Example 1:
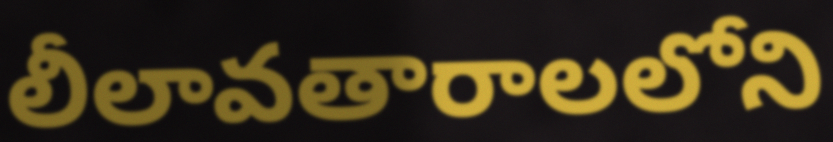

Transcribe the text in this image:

లీలావతారాలలోని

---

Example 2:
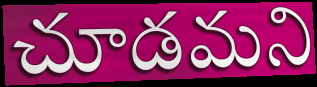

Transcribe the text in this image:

చూడమని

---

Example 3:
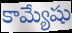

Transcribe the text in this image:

కామ్యేషు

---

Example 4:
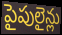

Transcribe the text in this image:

పైపులైన్లు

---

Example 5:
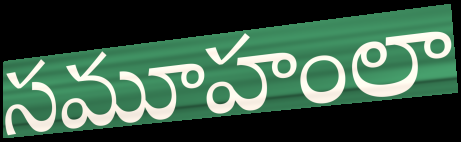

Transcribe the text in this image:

సమూహంలా